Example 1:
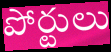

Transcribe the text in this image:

పోర్టులు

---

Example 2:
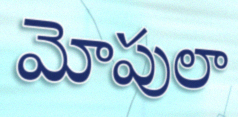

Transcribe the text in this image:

మోపులా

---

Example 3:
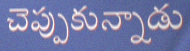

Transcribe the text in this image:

చెప్పుకున్నాడు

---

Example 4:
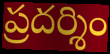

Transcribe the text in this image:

ప్రదర్శిం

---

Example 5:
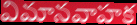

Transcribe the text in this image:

విమానవాహక